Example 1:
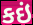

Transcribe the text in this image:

કઇં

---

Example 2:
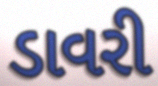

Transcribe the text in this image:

ડાવરી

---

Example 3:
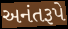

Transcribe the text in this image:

અનંતરૂપે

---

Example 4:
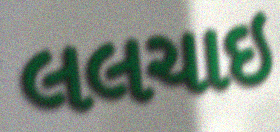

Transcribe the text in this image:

લલચાઇ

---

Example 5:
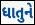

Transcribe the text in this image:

ધાતુને